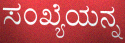
ಸಂಖ್ಯೆಯನ್ನ